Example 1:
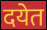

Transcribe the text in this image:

दयेत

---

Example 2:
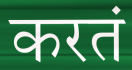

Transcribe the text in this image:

करतं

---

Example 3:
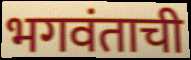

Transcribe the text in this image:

भगवंताची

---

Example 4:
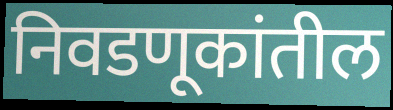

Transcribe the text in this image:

निवडणूकांतील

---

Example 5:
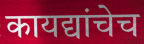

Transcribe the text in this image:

कायद्यांचेच